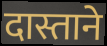
दास्ताने